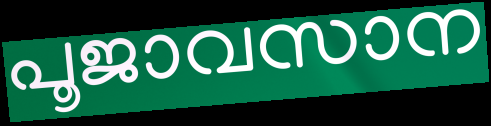
പൂജാവസാന